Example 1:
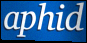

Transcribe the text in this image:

aphid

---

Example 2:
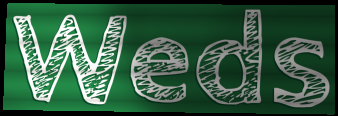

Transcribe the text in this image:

Weds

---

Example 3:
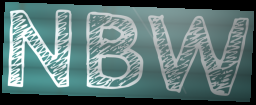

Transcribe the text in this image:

NBW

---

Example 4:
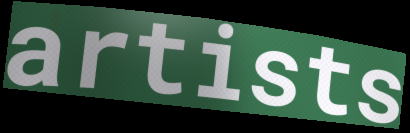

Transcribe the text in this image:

artists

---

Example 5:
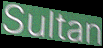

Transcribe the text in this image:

Sultan